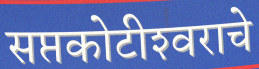
सप्तकोटीश्वराचे